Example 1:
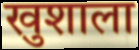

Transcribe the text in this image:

खुशाला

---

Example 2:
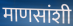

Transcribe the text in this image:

माणसांशी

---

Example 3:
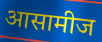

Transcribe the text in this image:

आसामीज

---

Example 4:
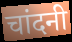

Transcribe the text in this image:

चांदनी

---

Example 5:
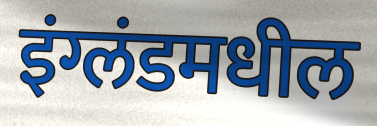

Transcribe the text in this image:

इंग्लंडमधील